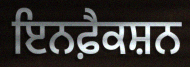
ਇਨਫ਼ੈਕਸ਼ਨ